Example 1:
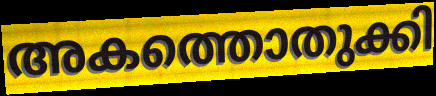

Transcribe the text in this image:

അകത്തൊതുക്കി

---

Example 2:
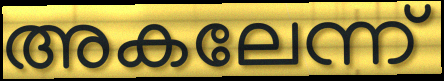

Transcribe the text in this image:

അകലേന്ന്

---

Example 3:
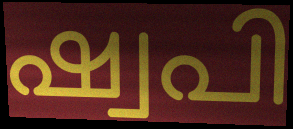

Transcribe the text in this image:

ഷ്വപി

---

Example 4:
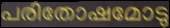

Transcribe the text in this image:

പരിതോഷമോടു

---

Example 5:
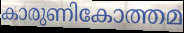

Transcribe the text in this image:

കാരുണികോത്തമ